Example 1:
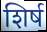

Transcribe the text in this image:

शिर्ष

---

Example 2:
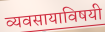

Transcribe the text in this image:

व्यवसायाविषयी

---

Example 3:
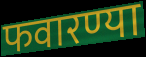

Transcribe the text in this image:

फवारण्या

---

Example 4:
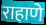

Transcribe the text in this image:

राहाणे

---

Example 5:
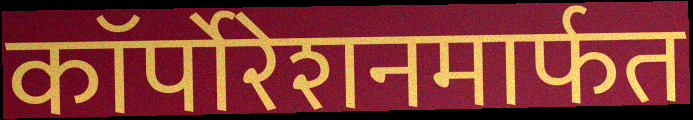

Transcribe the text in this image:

कॉर्पोरेशनमार्फत